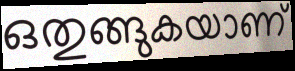
ഒതുങ്ങുകയാണ്